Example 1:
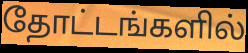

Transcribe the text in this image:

தோட்டங்களில்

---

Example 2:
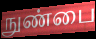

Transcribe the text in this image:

நுண்பை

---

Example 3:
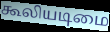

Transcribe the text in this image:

கூலியடிமை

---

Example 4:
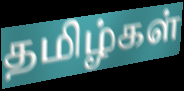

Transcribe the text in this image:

தமிழ்கள்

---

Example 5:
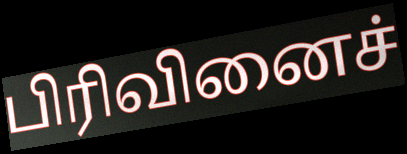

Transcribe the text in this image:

பிரிவினைச்